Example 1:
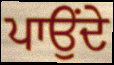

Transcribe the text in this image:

ਪਾਉਂਦੇ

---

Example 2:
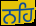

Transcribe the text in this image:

ਨਹਿ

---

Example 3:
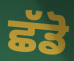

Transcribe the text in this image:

ਛੱਡੋ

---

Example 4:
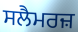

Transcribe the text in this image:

ਸਲੈਮਰਜ਼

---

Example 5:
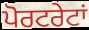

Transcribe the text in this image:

ਪੋਰਟਰੇਟਾਂ